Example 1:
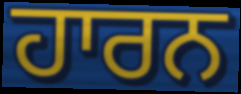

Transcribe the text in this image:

ਹਾਰਨ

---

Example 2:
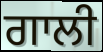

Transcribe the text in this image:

ਗਾਲੀ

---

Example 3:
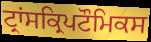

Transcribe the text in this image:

ਟ੍ਰਾਂਸਕ੍ਰਿਪਟੌਮਿਕਸ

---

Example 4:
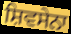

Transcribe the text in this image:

ਸ਼ਿਵਸੇਨਾ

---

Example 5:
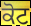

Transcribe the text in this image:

ਕੋਟ